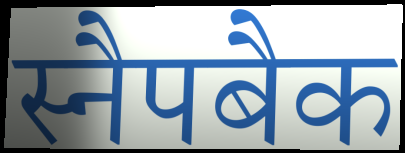
स्नैपबैक